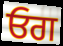
ਓਗ